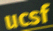
ucsf